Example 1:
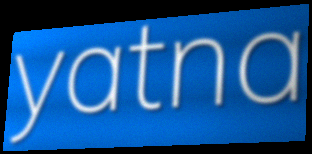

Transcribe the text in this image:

yatna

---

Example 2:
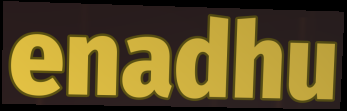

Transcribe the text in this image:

enadhu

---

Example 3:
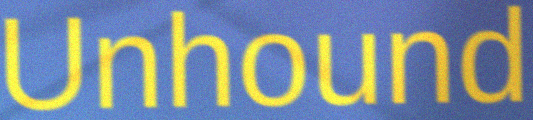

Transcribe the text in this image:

Unhound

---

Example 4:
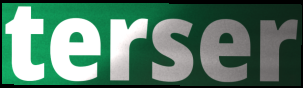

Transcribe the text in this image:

terser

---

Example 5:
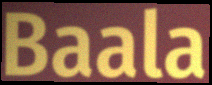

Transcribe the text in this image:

Baala